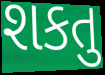
શકતુ